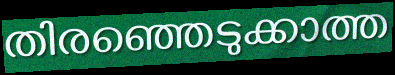
തിരഞ്ഞെടുക്കാത്ത